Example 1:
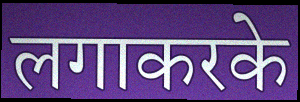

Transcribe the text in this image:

लगाकरके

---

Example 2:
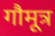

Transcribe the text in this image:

गौमूत्र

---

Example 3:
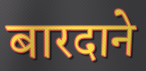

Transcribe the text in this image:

बारदाने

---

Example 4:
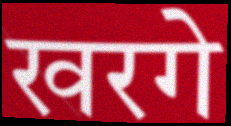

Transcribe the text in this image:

खरगे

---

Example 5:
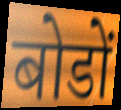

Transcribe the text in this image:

बोडों